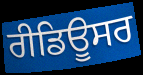
ਰੀਡਿਊਸਰ